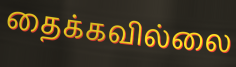
தைக்கவில்லை